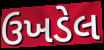
ઉખડેલ